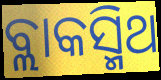
ବ୍ଲାକସ୍ମିଥ